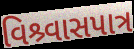
વિશ્ર્વાસપાત્ર